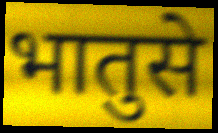
भातुसे